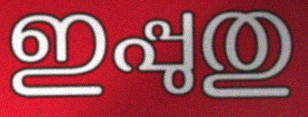
ഇപ്പുതു